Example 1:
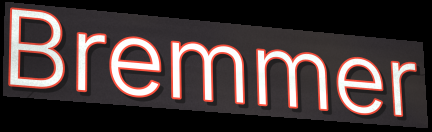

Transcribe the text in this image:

Bremmer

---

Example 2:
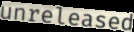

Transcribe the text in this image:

unreleased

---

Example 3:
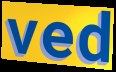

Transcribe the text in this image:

ved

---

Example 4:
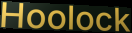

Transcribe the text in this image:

Hoolock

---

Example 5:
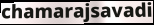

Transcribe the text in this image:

chamarajsavadi